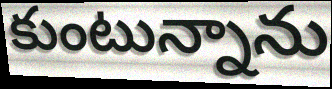
కుంటున్నాను